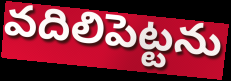
వదిలిపెట్టను